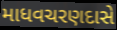
માધવચરણદાસે